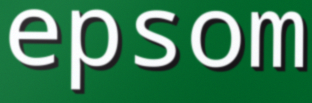
epsom